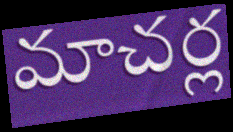
మాచర్ల